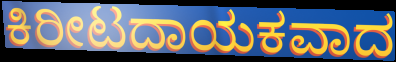
ಕಿರೀಟದಾಯಕವಾದ